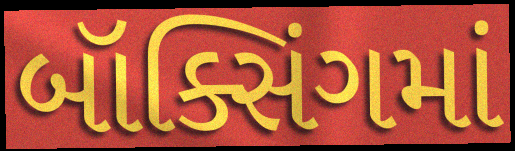
બૉક્સિંગમાં